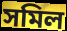
সমিল